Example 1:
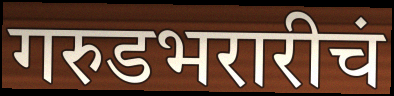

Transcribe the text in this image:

गरुडभरारीचं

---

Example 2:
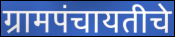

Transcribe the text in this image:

ग्रामपंचायतीचे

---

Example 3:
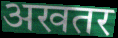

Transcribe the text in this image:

अखतर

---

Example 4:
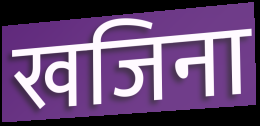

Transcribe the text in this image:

खजिना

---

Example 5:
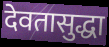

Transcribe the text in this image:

देवतासुद्धा